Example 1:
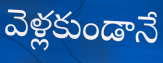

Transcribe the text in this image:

వెళ్లకుండానే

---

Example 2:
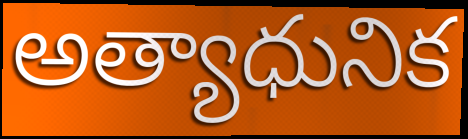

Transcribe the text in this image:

అత్యాధునిక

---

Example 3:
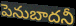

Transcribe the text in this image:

పెనుబాదనీ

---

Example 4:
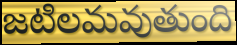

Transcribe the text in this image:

జటిలమవుతుంది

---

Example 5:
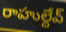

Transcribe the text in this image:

రాహుల్దేవ్